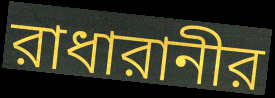
রাধারানীর